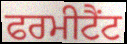
ਫਰਮੀਟੈਂਟ